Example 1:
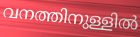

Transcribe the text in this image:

വനത്തിനുള്ളിൽ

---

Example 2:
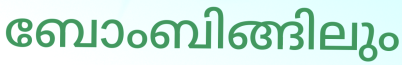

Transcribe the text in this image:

ബോംബിങ്ങിലും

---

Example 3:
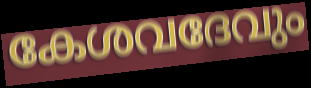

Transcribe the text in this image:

കേശവദേവും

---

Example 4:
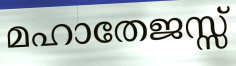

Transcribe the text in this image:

മഹാതേജസ്സ്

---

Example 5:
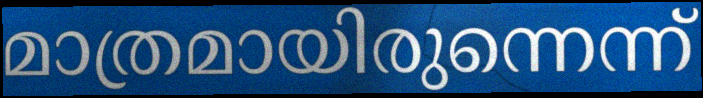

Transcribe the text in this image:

മാത്രമായിരുന്നെന്ന്